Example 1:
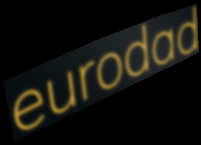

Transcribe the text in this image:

eurodad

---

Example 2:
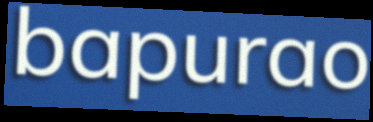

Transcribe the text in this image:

bapurao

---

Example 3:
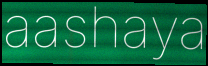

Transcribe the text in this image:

aashaya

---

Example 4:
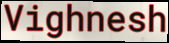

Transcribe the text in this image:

Vighnesh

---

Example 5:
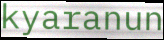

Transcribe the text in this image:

kyaranun